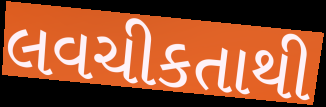
લવચીકતાથી